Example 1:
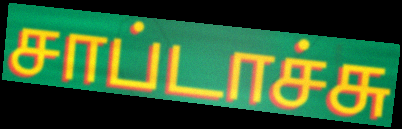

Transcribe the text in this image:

சாப்டாச்சு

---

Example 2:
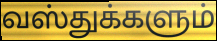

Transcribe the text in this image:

வஸ்துக்களும்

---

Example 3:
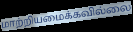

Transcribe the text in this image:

மாற்றியமைக்கவில்லை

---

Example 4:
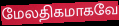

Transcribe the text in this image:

மேலதிகமாகவே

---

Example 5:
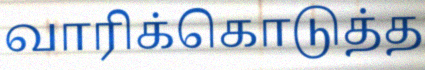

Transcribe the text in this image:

வாரிக்கொடுத்த